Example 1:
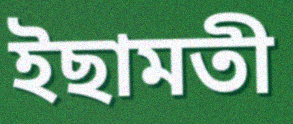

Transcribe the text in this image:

ইছামতী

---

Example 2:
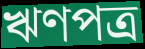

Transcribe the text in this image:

ঋণপত্র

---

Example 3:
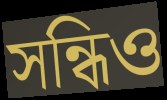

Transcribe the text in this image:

সন্ধিও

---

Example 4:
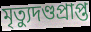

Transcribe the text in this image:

মৃত্যুদণ্ডপ্রাপ্ত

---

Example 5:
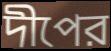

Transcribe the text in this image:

দীপের